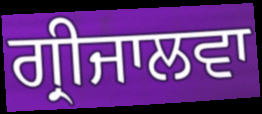
ਗ੍ਰੀਜਾਲਵਾ